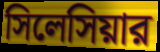
সিলেসিয়ার